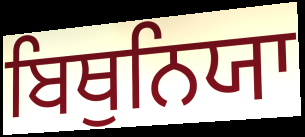
ਬਿਥੁਨਿਯਾ